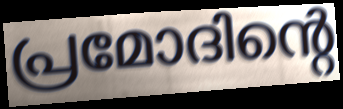
പ്രമോദിന്റെ